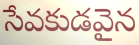
సేవకుడవైన